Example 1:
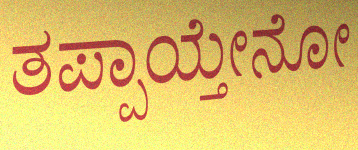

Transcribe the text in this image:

ತಪ್ಪಾಯ್ತೇನೋ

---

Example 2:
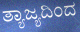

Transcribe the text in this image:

ತ್ಯಾಜ್ಯದಿಂದ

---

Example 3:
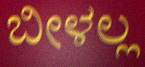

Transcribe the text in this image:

ಬೀಳಲ್ಲ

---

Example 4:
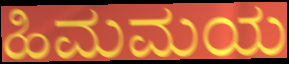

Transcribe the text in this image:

ಹಿಮಮಯ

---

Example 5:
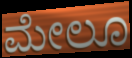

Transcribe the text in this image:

ಮೇಲೂ